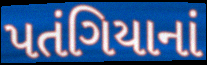
પતંગિયાનાં